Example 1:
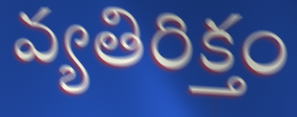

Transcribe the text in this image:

వ్యతిరిక్తం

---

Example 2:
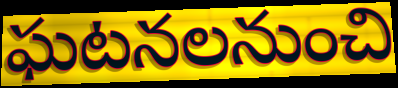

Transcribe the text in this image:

ఘటనలనుంచి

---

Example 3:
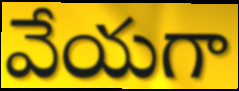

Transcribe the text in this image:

వేయగా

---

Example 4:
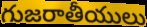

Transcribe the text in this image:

గుజరాతీయులు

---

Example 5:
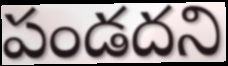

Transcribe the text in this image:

పండదని